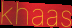
khaas